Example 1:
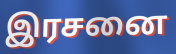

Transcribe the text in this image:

இரசனை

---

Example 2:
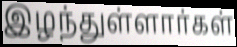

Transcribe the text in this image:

இழந்துள்ளார்கள்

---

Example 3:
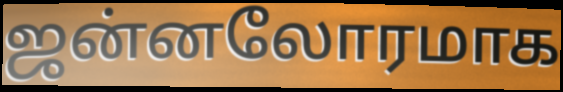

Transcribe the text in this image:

ஜன்னலோரமாக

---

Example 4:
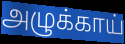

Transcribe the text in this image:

அழுக்காய்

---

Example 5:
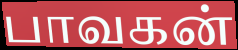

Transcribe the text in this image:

பாவகன்